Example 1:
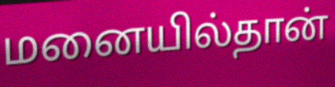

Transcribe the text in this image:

மனையில்தான்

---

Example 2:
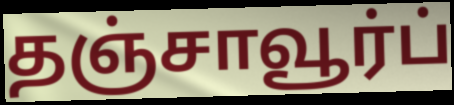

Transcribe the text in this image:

தஞ்சாவூர்ப்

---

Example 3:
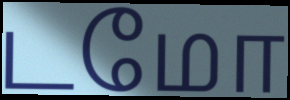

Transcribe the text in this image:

டமோ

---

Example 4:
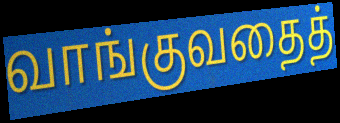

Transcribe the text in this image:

வாங்குவதைத்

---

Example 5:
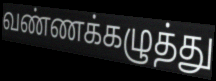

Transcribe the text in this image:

வண்ணக்கழுத்து